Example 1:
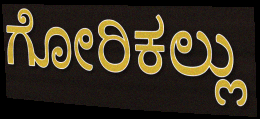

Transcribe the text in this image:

ಗೋರಿಕಲ್ಲು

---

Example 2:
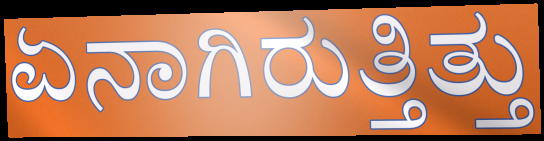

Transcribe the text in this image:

ಏನಾಗಿರುತ್ತಿತ್ತು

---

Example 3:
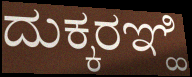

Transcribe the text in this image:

ದುಕ್ಕರಞ್ಹಿ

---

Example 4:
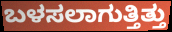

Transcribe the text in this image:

ಬಳಸಲಾಗುತ್ತಿತ್ತು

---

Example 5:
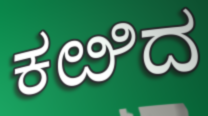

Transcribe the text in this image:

ಕೞಿದ